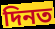
দিনত